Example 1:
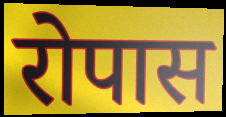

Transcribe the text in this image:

रोपास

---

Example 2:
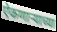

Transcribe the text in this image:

ऐकणाऱ्याच्या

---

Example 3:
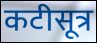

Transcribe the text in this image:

कटीसूत्र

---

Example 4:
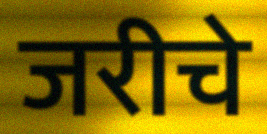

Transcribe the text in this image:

जरीचे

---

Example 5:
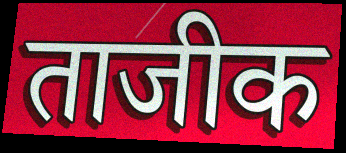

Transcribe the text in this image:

ताजीक